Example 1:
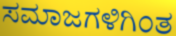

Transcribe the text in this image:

ಸಮಾಜಗಳಿಗಿಂತ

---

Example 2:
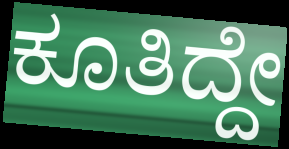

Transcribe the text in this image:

ಕೂತಿದ್ದೇ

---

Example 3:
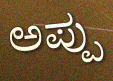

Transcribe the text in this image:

ಅಪ್ಪು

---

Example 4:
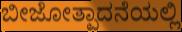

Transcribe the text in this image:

ಬೀಜೋತ್ಪಾದನೆಯಲ್ಲಿ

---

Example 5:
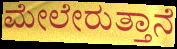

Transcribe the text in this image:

ಮೇಲೇರುತ್ತಾನೆ